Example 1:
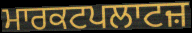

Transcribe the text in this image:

ਮਾਰਕਟਪਲਾਟਜ਼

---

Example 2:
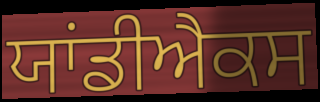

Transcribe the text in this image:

ਯਾਂਡੀਐਕਸ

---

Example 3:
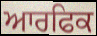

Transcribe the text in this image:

ਆਰਫਿਕ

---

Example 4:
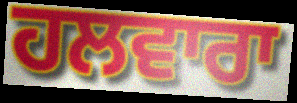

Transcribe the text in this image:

ਹਲਵਾਰਾ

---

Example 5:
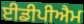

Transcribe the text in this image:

ਈਡੀਪੀਐਮ